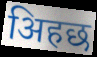
अिहछ